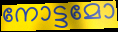
നോട്ടമോ